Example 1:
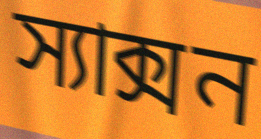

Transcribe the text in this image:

স্যাক্সন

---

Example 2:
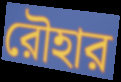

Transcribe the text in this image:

রৌহার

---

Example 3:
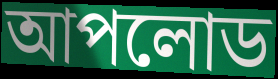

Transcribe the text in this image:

আপলোড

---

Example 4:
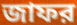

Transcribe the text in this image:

জাফর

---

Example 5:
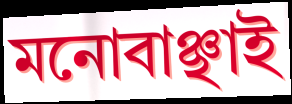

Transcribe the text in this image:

মনোবাঞ্ছাই